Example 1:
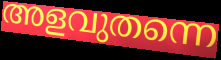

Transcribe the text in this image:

അളവുതന്നെ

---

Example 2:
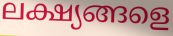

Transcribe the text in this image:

ലക്ഷ്യങ്ങളെ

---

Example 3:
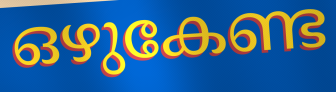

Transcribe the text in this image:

ഒഴുകേണ്ട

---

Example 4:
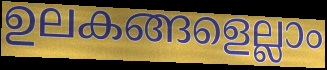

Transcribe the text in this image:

ഉലകങ്ങളെല്ലാം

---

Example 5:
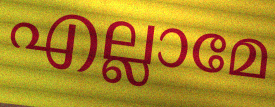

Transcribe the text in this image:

എല്ലാമേ